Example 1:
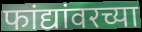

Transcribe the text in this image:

फांद्यांवरच्या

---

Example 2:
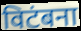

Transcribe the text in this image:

विटंबना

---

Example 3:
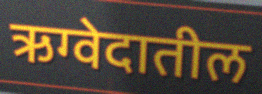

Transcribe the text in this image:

ऋग्वेदातील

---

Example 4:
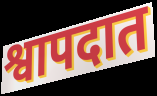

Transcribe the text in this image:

श्वापदात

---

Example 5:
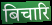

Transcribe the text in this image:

बिचारि